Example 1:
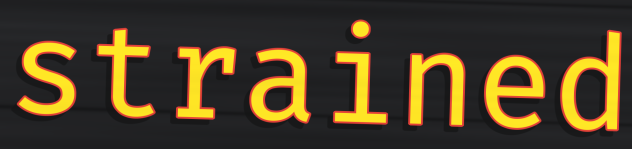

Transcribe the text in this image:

strained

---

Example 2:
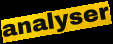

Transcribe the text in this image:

analyser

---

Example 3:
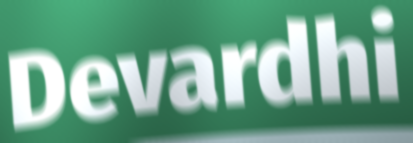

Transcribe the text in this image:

Devardhi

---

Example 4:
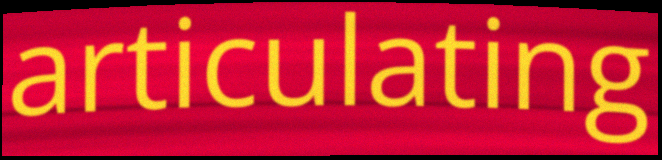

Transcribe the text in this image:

articulating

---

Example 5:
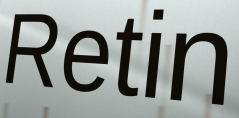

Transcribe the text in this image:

Retin